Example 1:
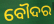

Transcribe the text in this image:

ବୌଦର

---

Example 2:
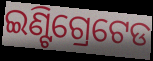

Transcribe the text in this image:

ଇଣ୍ଟିଗ୍ରେଟେଡ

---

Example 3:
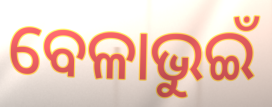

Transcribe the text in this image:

ବେଳାଭୁଇଁ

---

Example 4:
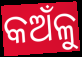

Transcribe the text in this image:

କଅଁଳୁ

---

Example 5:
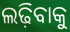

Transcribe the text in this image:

ଲଢ଼ିବାକୁ